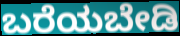
ಬರೆಯಬೇಡಿ